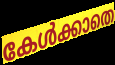
കേൾക്കാതെ